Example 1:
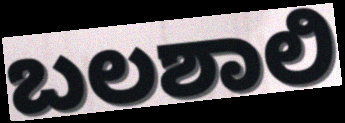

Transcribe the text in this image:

ಬಲಶಾಲಿ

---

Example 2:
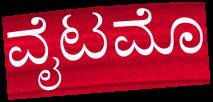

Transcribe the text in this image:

ವೈಟಮೊ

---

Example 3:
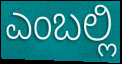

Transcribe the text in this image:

ಎಂಬಲ್ಲಿ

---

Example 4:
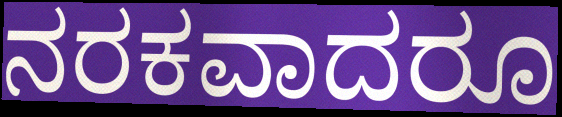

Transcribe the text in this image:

ನರಕವಾದರೂ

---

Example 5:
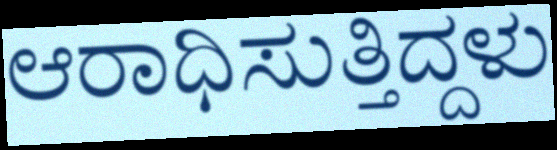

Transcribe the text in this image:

ಆರಾಧಿಸುತ್ತಿದ್ದಳು